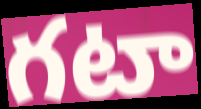
గటా